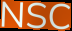
NSC